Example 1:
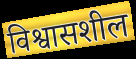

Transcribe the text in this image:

विश्वासशील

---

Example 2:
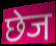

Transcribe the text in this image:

छेज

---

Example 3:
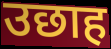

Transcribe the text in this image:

उछाह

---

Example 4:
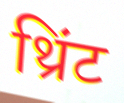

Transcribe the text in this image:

थ्रिंट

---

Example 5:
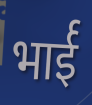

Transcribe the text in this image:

भार्ई